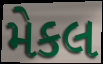
મેકલ